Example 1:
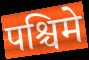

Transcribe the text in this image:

पश्चिमे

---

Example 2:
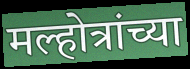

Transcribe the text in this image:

मल्होत्रांच्या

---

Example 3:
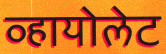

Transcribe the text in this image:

व्हायोलेट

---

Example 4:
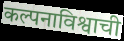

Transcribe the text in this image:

कल्पनाविश्वाची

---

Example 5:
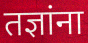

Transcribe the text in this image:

तज्ञांना